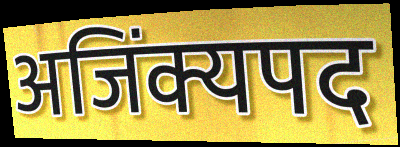
अजिंक्यपद